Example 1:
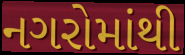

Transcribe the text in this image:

નગરોમાંથી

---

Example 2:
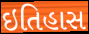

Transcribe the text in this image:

ઇતિહાસ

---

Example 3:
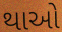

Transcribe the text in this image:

થાઓ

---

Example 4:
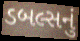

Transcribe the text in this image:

ડબલ્સનું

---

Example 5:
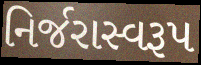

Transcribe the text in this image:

નિર્જરાસ્વરૂપ